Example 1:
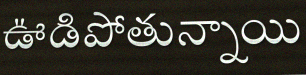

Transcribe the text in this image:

ఊడిపోతున్నాయి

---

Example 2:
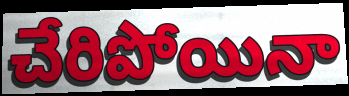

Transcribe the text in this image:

చేరిపోయినా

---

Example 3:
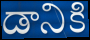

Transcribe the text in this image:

డానికి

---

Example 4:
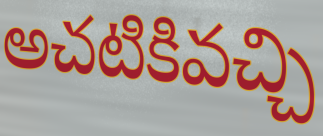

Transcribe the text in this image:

అచటికివచ్చి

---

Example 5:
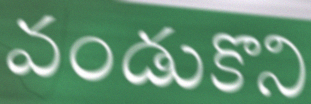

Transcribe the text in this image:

వండుకొని